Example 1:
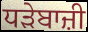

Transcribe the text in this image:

ਧੜੇਬਾਜ਼ੀ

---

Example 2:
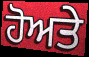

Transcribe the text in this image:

ਹੋਅਤੇ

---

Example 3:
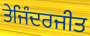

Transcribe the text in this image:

ਤੇਜਿੰਦਰਜੀਤ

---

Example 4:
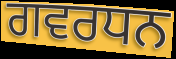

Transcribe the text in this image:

ਗਵਰਧਨ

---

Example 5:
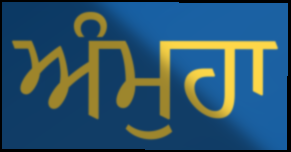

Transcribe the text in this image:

ਅੰਮੁਹਾ